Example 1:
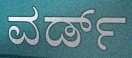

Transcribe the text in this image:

ವರ್ಡ್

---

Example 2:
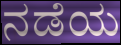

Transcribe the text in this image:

ನಡೆಯ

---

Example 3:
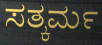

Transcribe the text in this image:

ಸತ್ಕರ್ಮ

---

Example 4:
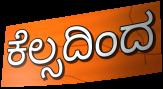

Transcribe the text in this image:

ಕೆಲ್ಸದಿಂದ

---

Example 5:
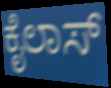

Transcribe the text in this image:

ಕೈಲಾಸ್